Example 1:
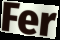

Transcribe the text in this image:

Fer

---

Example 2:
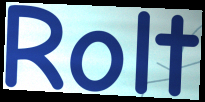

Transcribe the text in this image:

Rolt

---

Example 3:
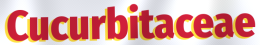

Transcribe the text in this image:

Cucurbitaceae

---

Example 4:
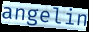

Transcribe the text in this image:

angelin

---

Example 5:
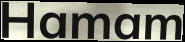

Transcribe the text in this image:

Hamam